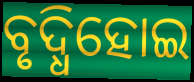
ବୃଦ୍ଧିହୋଇ